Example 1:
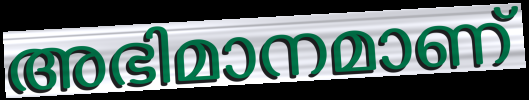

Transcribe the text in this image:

അഭിമാനമാണ്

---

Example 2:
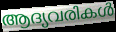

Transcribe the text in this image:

ആദ്യവരികൾ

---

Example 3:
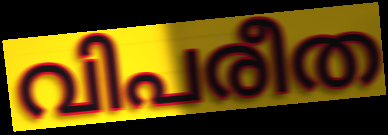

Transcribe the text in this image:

വിപരീത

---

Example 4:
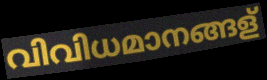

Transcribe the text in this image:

വിവിധമാനങ്ങള്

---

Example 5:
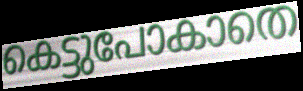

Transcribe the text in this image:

കെട്ടുപോകാതെ